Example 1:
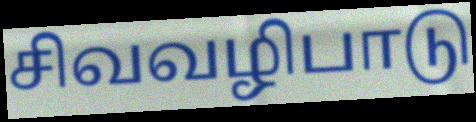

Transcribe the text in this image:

சிவவழிபாடு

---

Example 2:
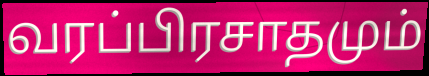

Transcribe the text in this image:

வரப்பிரசாதமும்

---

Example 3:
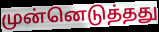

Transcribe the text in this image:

முன்னெடுத்தது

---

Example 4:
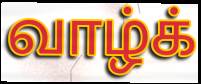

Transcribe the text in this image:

வாழ்க்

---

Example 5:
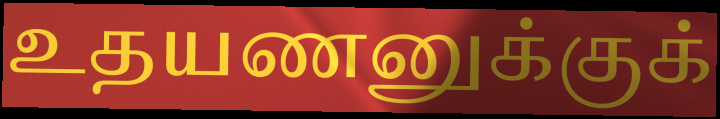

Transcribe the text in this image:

உதயணனுக்குக்